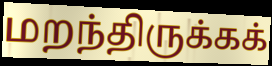
மறந்திருக்கக்